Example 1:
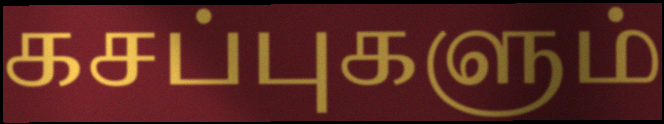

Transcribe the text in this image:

கசப்புகளும்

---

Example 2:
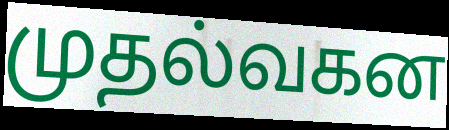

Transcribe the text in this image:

முதல்வகன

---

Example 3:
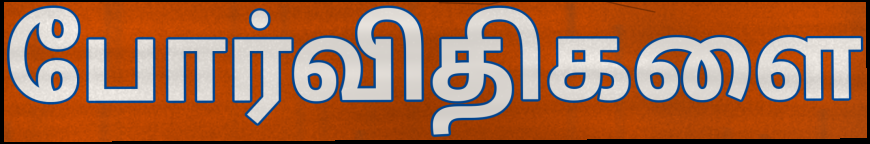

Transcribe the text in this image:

போர்விதிகளை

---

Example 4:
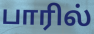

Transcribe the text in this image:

பாரில்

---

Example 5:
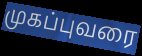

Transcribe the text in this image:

முகப்புவரை